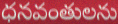
ధనవంతులను